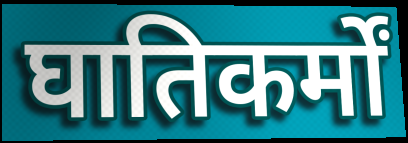
घातिकर्मों